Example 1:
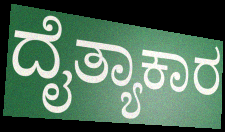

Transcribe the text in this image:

ದೈತ್ಯಾಕಾರ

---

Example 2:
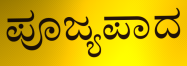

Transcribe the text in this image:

ಪೂಜ್ಯಪಾದ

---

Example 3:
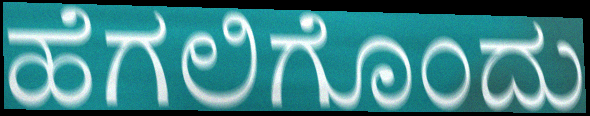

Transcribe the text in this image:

ಹೆಗಲಿಗೊಂದು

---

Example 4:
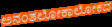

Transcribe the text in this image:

ಅನಂತಲೋಕಾಲೋಕದ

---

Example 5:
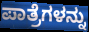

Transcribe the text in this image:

ಪಾತ್ರೆಗಳನ್ನು